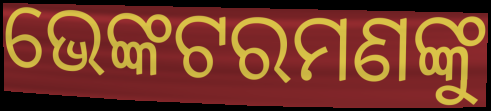
ଭେଙ୍କଟରମଣଙ୍କୁ